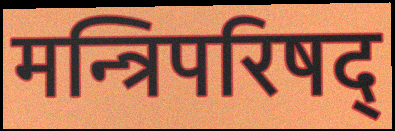
मन्त्रिपरिषद्